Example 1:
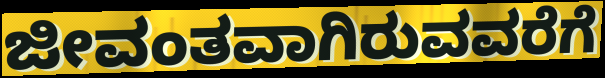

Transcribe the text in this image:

ಜೀವಂತವಾಗಿರುವವರೆಗೆ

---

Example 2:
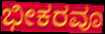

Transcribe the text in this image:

ಭೀಕರವೂ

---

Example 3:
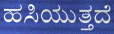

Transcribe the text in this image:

ಹಸಿಯುತ್ತದೆ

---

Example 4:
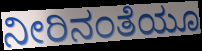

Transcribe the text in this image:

ನೀರಿನಂತೆಯೂ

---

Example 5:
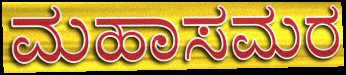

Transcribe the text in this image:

ಮಹಾಸಮರ